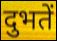
दुभतें